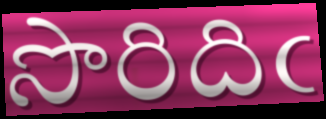
సొరిదిఁ